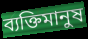
ব্যক্তিমানুষ